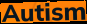
Autism